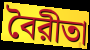
বৈরীতা